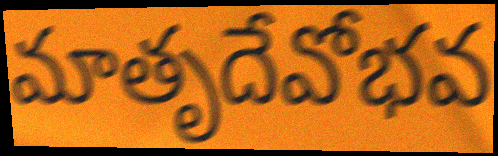
మాతృదేవోభవ